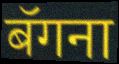
बॅगना